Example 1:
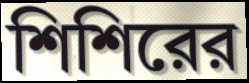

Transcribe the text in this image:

শিশিরের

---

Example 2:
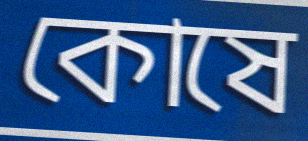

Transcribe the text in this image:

কোষে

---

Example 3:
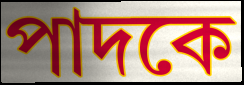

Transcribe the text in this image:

পাদকে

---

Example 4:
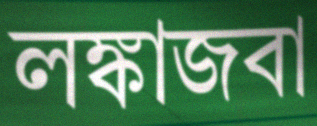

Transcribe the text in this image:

লঙ্কাজবা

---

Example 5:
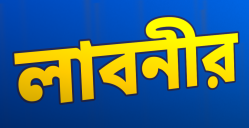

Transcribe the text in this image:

লাবনীর